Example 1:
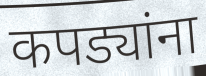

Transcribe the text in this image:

कपड्यांना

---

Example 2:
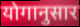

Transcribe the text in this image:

योगानुसार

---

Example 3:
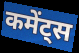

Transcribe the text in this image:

कमेंट्स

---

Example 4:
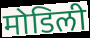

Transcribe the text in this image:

मोडिली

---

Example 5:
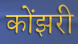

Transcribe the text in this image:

कोंझरी